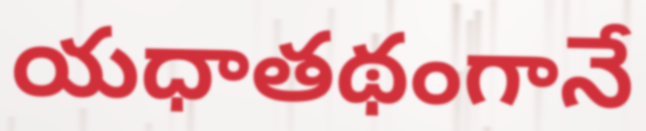
యధాతథంగానే